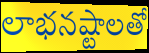
లాభనష్టాలతో